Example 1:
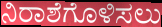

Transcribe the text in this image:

ನಿರಾಶೆಗೊಳಿಸಲು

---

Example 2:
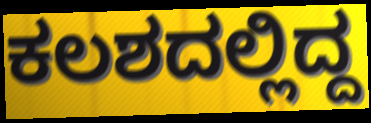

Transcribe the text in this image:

ಕಲಶದಲ್ಲಿದ್ದ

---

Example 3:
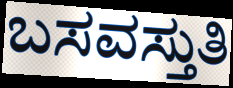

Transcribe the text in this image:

ಬಸವಸ್ತುತಿ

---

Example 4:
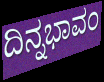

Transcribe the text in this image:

ದಿನ್ನಭಾವಂ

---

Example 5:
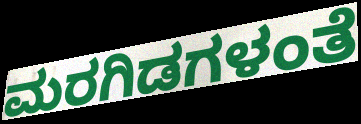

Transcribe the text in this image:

ಮರಗಿಡಗಳಂತೆ